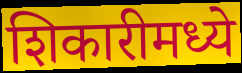
शिकारीमध्ये